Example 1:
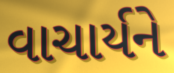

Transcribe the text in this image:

વાચાર્યને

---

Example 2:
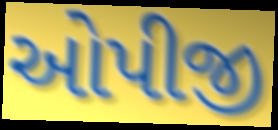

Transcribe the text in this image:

ઓપીજી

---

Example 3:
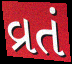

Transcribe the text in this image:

વ્રતં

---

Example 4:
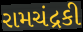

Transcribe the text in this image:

રામચંદ્રકી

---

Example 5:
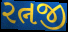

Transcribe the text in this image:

રત્નજી